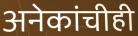
अनेकांचीही